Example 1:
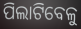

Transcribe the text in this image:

ପିଲାଟିବେଳୁ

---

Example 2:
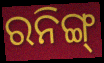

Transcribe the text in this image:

ରନିଙ୍ଗ୍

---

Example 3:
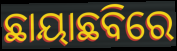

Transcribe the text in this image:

ଛାୟାଛବିରେ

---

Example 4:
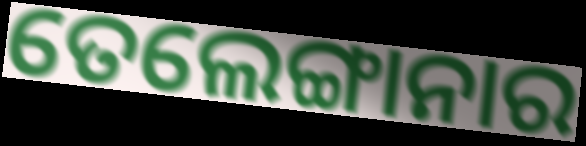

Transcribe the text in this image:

ତେଲେଙ୍ଗାନାର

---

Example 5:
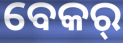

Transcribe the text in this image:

ବେକର୍